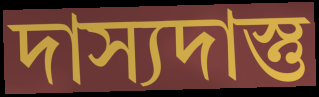
দাস্যদাস্তু